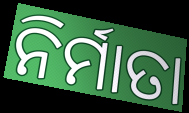
ନିର୍ମାତା